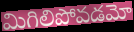
మిగిలిపోవడమో